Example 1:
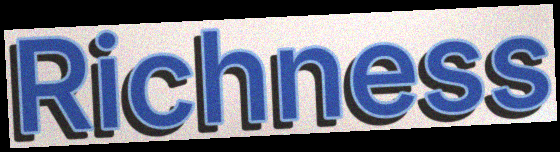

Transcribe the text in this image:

Richness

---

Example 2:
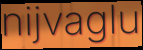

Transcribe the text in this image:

nijvaglu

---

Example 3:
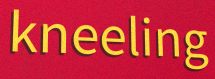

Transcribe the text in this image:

kneeling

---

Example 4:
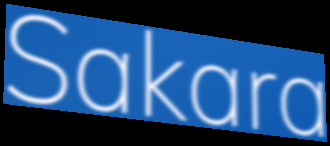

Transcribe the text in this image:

Sakara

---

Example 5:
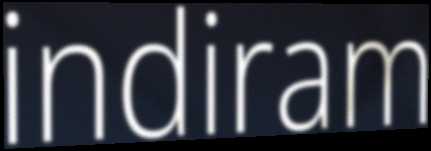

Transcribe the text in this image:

indiram